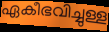
ഏകീഭവിച്ചുള്ള